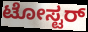
ಟೋಸ್ಟರ್